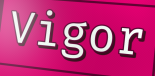
Vigor